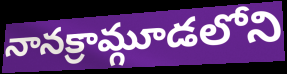
నానక్రామ్గూడలోని